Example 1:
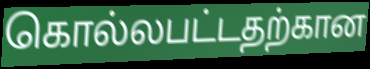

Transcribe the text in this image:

கொல்லபட்டதற்கான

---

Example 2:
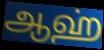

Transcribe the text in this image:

ஆஹ்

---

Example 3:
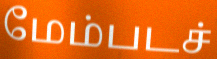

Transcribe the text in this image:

மேம்படச்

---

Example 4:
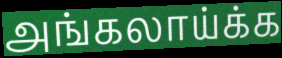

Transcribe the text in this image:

அங்கலாய்க்க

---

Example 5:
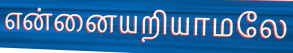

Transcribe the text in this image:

என்னையறியாமலே